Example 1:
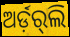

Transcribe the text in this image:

ଅର୍ଡ଼ର୍‌ଲି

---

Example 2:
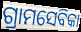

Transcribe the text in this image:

ଗ୍ରାମସେବିକା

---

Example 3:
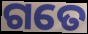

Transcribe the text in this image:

ଗତେ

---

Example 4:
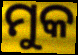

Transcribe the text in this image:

ମୁକ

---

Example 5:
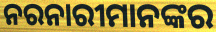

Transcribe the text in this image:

ନରନାରୀମାନଙ୍କର